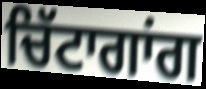
ਚਿੱਟਾਗਾਂਗ